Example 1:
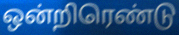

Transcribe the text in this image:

ஒன்றிரெண்டு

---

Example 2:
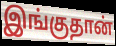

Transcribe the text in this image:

இங்குதான்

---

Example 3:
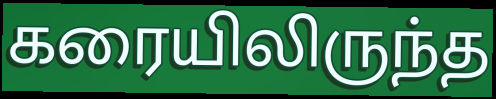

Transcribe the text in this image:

கரையிலிருந்த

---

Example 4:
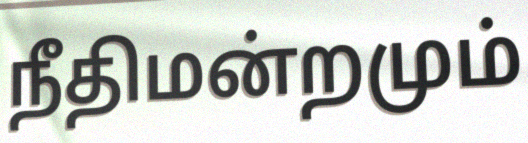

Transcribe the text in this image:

நீதிமன்றமும்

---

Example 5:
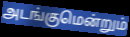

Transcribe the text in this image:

அடங்குமென்றும்